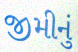
જીમીનું